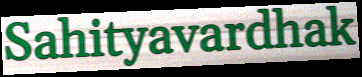
Sahityavardhak